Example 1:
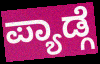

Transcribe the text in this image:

ಪ್ಯಾಡ್ಗೆ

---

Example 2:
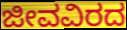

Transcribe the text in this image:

ಜೀವವಿರದ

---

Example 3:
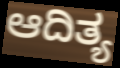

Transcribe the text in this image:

ಆದಿತ್ಯ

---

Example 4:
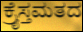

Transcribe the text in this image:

ಕ್ರೈಸ್ತಮತದ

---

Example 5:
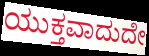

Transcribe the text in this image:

ಯುಕ್ತವಾದುದೇ